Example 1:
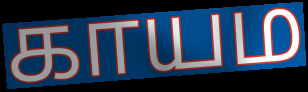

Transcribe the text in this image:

காயம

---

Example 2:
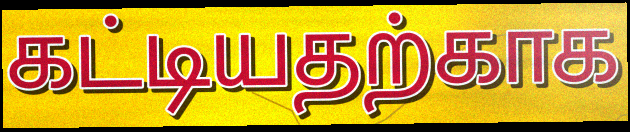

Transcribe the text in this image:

கட்டியதற்காக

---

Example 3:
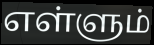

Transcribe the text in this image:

எள்ளும்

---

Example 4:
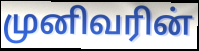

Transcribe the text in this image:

முனிவரின்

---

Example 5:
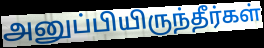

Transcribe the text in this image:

அனுப்பியிருந்தீர்கள்